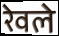
रेवले